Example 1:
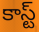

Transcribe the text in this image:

కాస్ట్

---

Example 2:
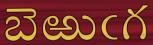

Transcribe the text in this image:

బెఱుఁగ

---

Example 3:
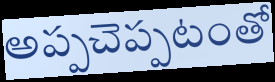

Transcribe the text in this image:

అప్పచెప్పటంతో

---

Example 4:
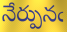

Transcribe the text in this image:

నేర్పునఁ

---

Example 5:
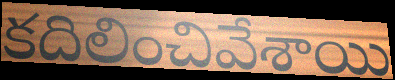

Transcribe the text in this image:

కదిలించివేశాయి